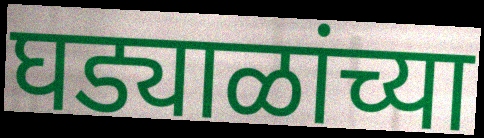
घड्याळांच्या